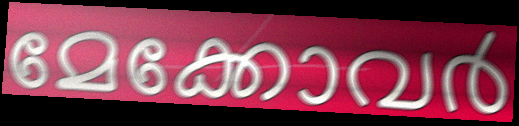
മേക്കോവർ